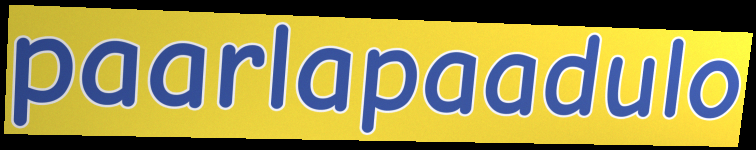
paarlapaadulo